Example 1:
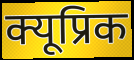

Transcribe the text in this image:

क्यूप्रिक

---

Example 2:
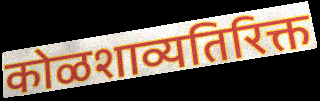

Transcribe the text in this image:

कोळशाव्यतिरिक्त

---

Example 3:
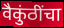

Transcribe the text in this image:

वैकुंठींचा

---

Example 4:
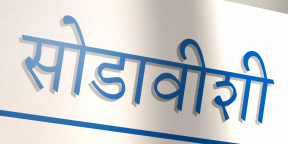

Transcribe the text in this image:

सोडावीशी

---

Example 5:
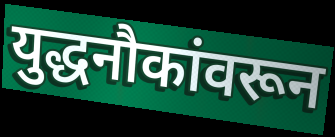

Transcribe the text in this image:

युद्धनौकांवरून